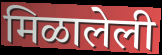
मिळालेली